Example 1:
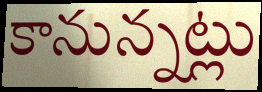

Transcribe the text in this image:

కానున్నట్లు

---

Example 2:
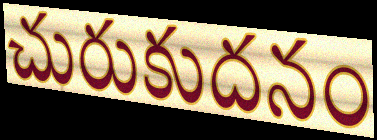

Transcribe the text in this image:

చురుకుదనం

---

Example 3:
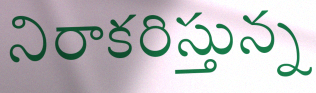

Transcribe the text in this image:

నిరాకరిస్తున్న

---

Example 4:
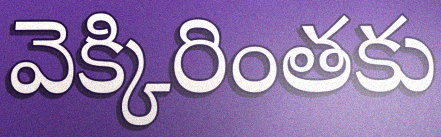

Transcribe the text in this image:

వెక్కిరింతకు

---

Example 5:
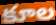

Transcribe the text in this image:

కూల